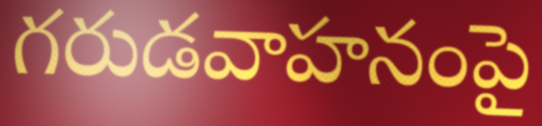
గరుడవాహనంపై